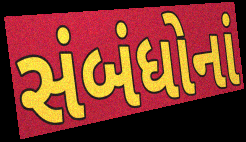
સંબંધોનાં